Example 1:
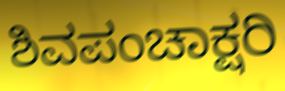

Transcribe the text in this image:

ಶಿವಪಂಚಾಕ್ಷರಿ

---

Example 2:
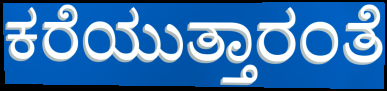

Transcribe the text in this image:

ಕರೆಯುತ್ತಾರಂತೆ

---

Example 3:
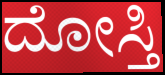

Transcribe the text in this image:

ದೋಸ್ತಿ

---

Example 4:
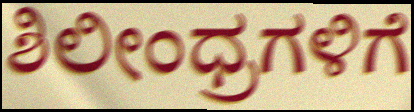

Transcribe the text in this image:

ಶಿಲೀಂಧ್ರಗಳಿಗೆ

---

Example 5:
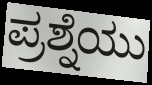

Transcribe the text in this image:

ಪ್ರಶ್ನೆಯು